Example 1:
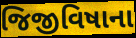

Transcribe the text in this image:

જિજીવિષાના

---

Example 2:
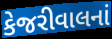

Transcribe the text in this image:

કેજરીવાલનાં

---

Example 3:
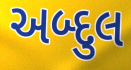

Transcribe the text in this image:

અબ્દુલ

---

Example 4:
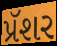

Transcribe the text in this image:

પ્રૅશર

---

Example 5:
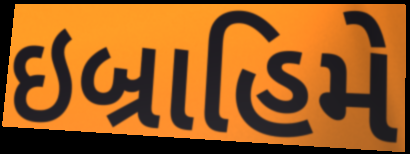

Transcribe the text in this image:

ઇબ્રાહિમે